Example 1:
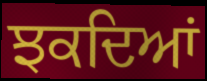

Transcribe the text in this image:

ਝਕਦਿਆਂ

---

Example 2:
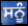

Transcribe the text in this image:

ਸਨੂੰ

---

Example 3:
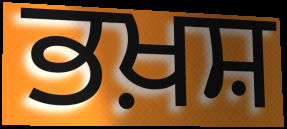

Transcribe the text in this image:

ਭਖ਼ਸ਼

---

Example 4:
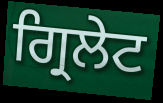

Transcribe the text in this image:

ਗ੍ਰਿਲੇਟ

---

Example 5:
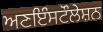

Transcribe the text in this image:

ਅਣਇੰਸਟੌਲੇਸ਼ਨ